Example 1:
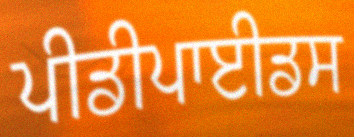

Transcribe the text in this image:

ਪੀਡੀਪਾਈਡਸ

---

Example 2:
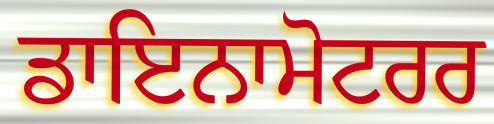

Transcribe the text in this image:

ਡਾਇਨਾਮੋਟਰਰ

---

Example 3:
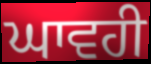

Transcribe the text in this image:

ਘਾਵਹੀ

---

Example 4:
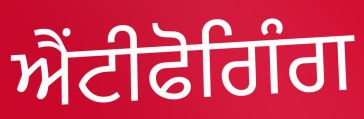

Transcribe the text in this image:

ਐਂਟੀਫੋਗਿੰਗ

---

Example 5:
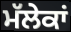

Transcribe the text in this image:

ਮੱਲੇਕਾਂ